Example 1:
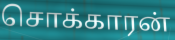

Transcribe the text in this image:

சொக்காரன்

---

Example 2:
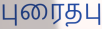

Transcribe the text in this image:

புரைதபு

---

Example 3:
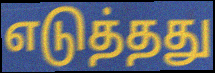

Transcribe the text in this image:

எடுத்தது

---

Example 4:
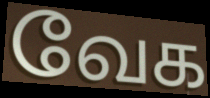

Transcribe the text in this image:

வேக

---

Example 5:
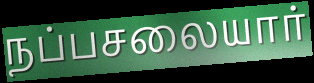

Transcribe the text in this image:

நப்பசலையார்